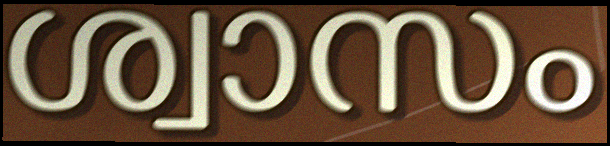
ശ്വാസം